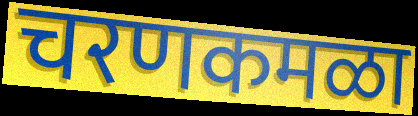
चरणकमळा